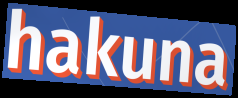
hakuna